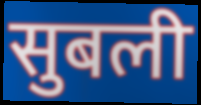
सुबली